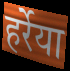
हर्रेया